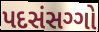
પદસંસગ્ગો